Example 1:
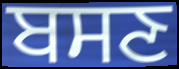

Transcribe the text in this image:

ਬਸਣ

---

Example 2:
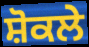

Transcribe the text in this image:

ਸ਼ੋਕਲੇ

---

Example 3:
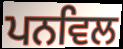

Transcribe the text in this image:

ਪਨਵਿਲ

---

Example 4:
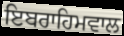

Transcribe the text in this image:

ਇਬਰਾਹਿਮਵਾਲ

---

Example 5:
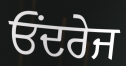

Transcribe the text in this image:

ਓਂਦਰੇਜ